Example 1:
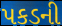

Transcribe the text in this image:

પકડની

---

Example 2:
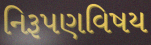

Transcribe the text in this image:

નિરૂપણવિષય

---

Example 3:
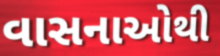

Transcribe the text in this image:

વાસનાઓથી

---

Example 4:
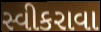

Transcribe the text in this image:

સ્વીકરાવા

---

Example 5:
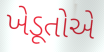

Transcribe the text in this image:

ખેડૂતોએ